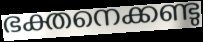
ഭക്തനെക്കണ്ടു